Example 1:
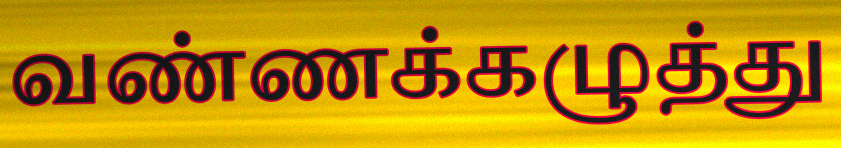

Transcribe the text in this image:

வண்ணக்கழுத்து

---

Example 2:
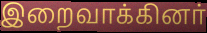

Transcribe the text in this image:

இறைவாக்கினர்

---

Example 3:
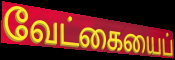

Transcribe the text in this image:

வேட்கையைப்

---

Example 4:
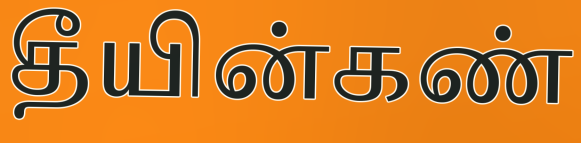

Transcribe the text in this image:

தீயின்கண்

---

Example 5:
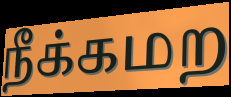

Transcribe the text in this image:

நீக்கமற